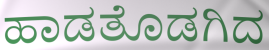
ಹಾಡತೊಡಗಿದ